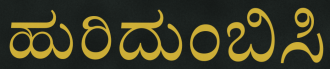
ಹುರಿದುಂಬಿಸಿ